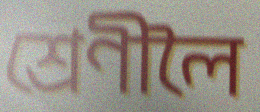
শ্ৰেণীলৈ